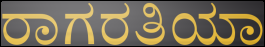
ರಾಗರತಿಯಾ